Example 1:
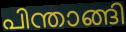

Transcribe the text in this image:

പിന്താങ്ങി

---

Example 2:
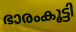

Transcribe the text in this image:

ഭാരംകൂട്ടി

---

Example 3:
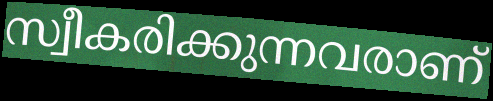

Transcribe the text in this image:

സ്വീകരിക്കുന്നവരാണ്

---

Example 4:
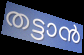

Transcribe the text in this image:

തട്ടാൻ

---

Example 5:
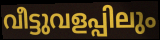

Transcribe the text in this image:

വീട്ടുവളപ്പിലും